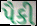
પૈકી